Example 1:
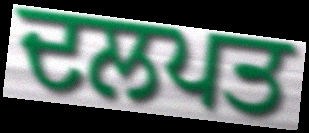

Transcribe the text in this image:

ਦਲਪਤ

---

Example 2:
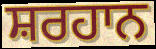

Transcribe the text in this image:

ਸ਼ਰਹਾਨ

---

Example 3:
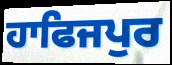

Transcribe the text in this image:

ਹਾਫਿਜਪੁਰ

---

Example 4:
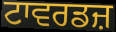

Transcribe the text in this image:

ਟਾਵਰਡਜ਼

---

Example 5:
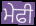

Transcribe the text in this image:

ਮੇਫੀ